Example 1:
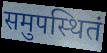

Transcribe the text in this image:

समुपस्थितं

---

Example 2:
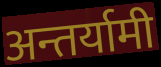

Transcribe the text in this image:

अन्‍तर्यामी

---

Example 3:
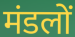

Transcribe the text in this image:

मंडलों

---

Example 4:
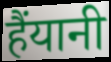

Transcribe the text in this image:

हैंयानी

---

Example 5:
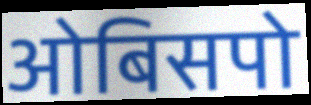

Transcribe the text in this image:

ओबिसपो